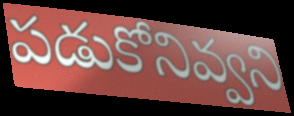
పడుకోనివ్వని